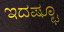
ಇದಷ್ಟೂ